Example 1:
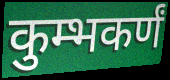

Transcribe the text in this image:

कुम्भकर्णं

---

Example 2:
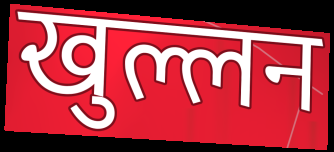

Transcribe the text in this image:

खुल्लन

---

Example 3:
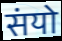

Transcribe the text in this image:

संयो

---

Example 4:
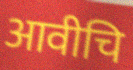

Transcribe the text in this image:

आवीचि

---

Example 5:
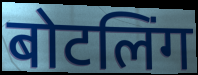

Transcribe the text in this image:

बोटलिंग